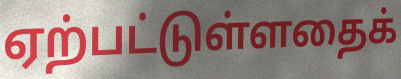
ஏற்பட்டுள்ளதைக்